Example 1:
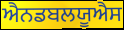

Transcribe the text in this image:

ਐਨਡਬਲਯੂਐਸ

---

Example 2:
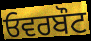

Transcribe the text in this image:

ਓਵਰਬੌਟ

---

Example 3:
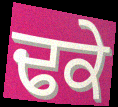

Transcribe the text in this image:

ਢਕੇ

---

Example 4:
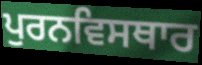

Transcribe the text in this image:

ਪੁਰਨਵਿਸਥਾਰ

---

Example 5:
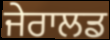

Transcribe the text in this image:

ਜੇਰਾਲਡ